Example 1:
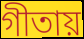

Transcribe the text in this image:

গীতায়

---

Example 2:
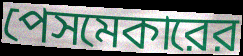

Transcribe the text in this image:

পেসমেকারের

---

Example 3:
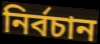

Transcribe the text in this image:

নির্বচান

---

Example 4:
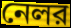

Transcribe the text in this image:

নেলর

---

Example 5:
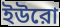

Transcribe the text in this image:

ইউরো